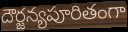
దౌర్జన్యపూరితంగా